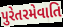
પુરેતરમેવાતિ